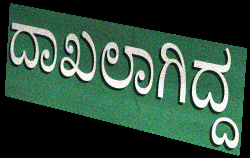
ದಾಖಲಾಗಿದ್ದ